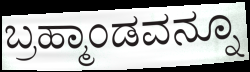
ಬ್ರಹ್ಮಾಂಡವನ್ನೂ